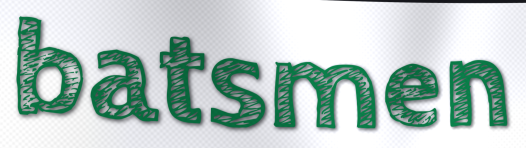
batsmen